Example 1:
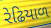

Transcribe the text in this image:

રેઢિયાળ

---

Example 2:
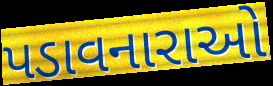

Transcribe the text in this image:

પડાવનારાઓ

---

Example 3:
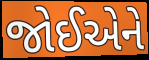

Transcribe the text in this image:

જોઈએને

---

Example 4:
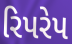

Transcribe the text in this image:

રિપરેપ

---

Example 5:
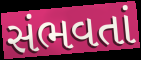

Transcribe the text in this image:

સંભવતાં